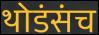
थोडंसंच